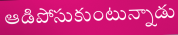
ఆడిపోసుకుంటున్నాడు